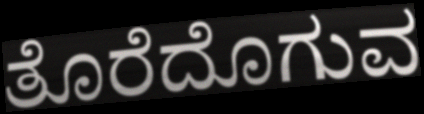
ತೊರೆದೊಗುವ